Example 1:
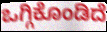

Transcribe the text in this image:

ಒಗ್ಗಿಕೊಂಡಿದೆ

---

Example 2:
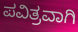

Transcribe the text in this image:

ಪವಿತ್ರವಾಗಿ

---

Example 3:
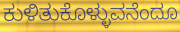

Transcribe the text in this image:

ಕುಳಿತುಕೊಳ್ಳುವನೆಂದೂ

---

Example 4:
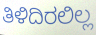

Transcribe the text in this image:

ತಿಳಿದಿರಲಿಲ್ಲ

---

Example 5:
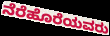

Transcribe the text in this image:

ನೆರೆಹೊರೆಯವರು